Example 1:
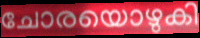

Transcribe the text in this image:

ചോരയൊഴുകി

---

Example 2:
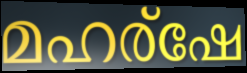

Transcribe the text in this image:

മഹര്ഷേ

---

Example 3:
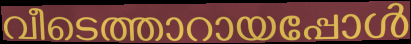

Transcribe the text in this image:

വീടെത്താറായപ്പോൾ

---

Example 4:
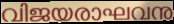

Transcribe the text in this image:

വിജയരാഘവനു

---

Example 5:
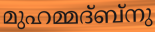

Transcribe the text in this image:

മുഹമ്മദ്ബ്നു